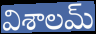
విశాలమ్